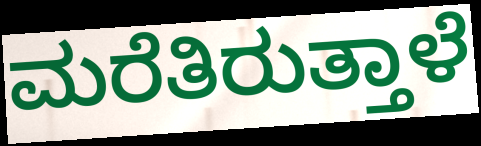
ಮರೆತಿರುತ್ತಾಳೆ